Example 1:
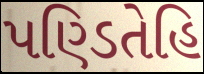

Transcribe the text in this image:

પણ્ડિતેહિ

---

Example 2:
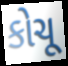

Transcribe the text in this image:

કોચૂ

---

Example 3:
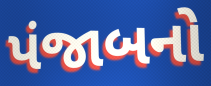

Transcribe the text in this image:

પંજાબનો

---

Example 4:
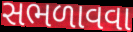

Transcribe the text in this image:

સભળાવવા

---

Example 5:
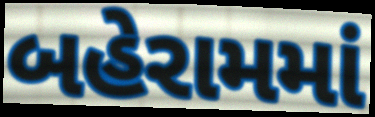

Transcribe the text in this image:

બહેરામમાં